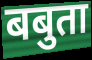
बबुता